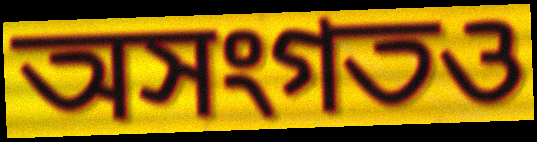
অসংগতও